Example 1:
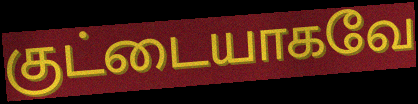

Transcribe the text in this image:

குட்டையாகவே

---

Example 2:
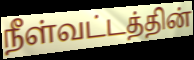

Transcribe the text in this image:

நீள்வட்டத்தின்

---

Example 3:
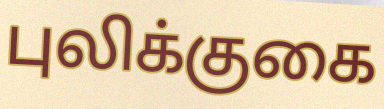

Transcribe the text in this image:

புலிக்குகை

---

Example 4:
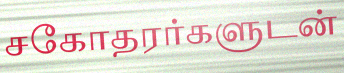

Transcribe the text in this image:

சகோதரர்களுடன்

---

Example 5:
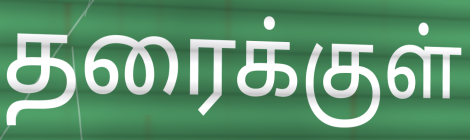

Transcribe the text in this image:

தரைக்குள்